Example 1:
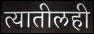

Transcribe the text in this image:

त्यातीलही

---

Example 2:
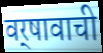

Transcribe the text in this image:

वर्षावाची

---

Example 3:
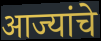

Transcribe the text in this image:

आज्यांचे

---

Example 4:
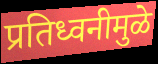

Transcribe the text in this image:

प्रतिध्वनीमुळे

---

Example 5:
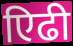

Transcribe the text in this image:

एिढी